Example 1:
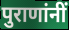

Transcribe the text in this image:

पुराणांनीं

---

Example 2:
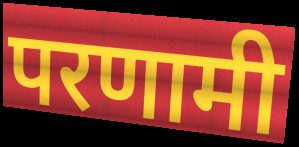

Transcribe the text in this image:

परणामी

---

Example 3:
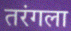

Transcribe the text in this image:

तरंगला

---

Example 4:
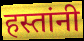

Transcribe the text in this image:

हस्तांनी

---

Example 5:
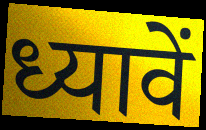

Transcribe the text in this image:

ध्यावें